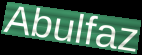
Abulfaz